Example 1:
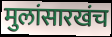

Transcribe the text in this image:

मुलांसारखंच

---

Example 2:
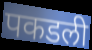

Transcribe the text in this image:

पकडली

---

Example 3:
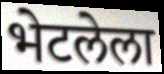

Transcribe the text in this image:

भेटलेला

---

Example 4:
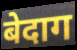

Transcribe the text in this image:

बेदाग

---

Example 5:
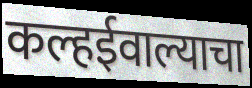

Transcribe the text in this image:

कल्हईवाल्याचा